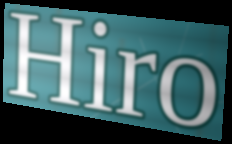
Hiro